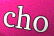
cho